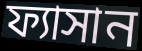
ফ্যাসান